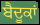
ਬੈਦੂਕਾਂ